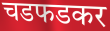
चडफडकर